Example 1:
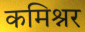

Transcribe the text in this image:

कमिश्नर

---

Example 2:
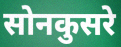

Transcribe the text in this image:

सोनकुसरे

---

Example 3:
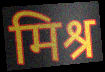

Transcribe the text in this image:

मिश्र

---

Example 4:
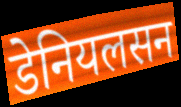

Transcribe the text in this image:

डेनियलसन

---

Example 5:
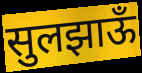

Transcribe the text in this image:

सुलझाऊँ